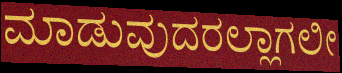
ಮಾಡುವುದರಲ್ಲಾಗಲೀ